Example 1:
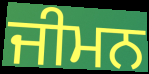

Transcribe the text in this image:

ਜੀਮਨ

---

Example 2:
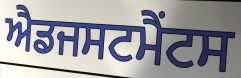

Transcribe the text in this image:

ਐਡਜਸਟਮੈਂਟਸ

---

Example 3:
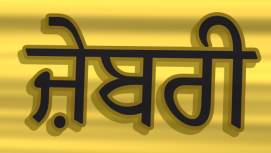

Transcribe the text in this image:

ਜ਼ੇਬਰੀ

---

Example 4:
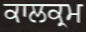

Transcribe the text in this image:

ਕਾਲਕ੍ਰਮ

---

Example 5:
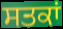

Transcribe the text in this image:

ਸਤਕਾਂ